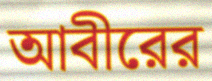
আবীরের